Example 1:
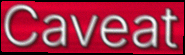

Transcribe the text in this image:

Caveat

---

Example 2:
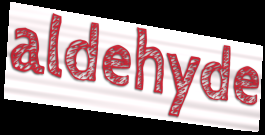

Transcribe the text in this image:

aldehyde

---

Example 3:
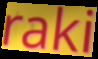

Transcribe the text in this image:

raki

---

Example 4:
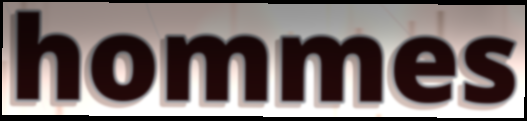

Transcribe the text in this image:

hommes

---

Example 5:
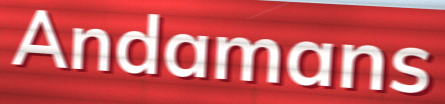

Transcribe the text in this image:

Andamans